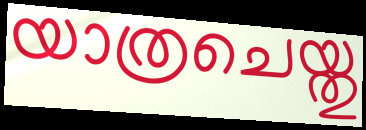
യാത്രചെയ്തു